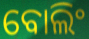
ବୋଲିଂ